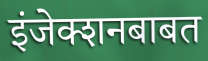
इंजेक्शनबाबत